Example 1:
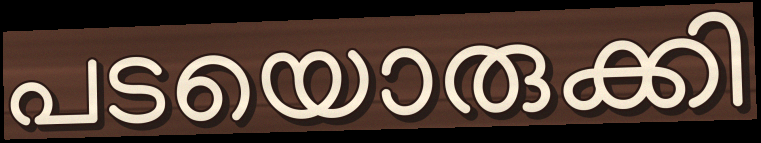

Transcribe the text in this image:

പടയൊരുക്കി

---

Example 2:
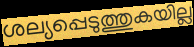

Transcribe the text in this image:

ശല്യപ്പെടുത്തുകയില്ല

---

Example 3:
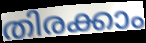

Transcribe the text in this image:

തിരക്കാം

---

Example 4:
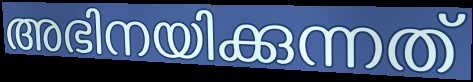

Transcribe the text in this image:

അഭിനയിക്കുന്നത്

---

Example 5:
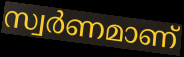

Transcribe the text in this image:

സ്വർണമാണ്